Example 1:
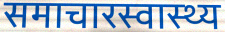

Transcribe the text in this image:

समाचारस्वास्थ्य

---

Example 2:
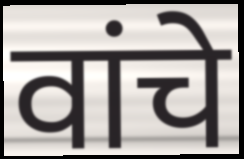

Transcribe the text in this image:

वांचे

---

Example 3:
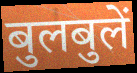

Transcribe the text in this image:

बुलबुलें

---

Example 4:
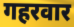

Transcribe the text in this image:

गहरवार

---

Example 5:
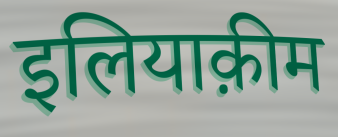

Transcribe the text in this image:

इलियाक़ीम